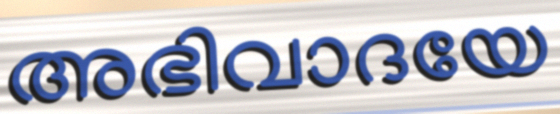
അഭിവാദയേ